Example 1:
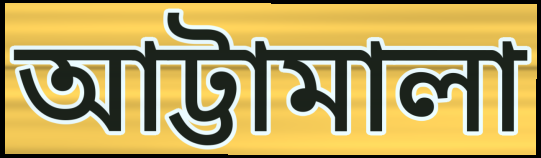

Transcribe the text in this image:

আট্টামালা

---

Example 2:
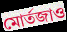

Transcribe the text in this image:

মোর্তজাও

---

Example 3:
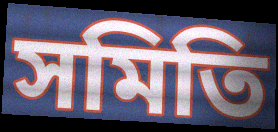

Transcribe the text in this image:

সমিতি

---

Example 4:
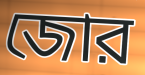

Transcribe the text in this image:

জোর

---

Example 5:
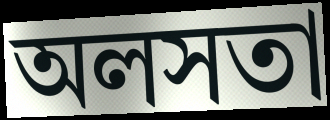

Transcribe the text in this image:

অলসতা